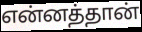
என்னத்தான்